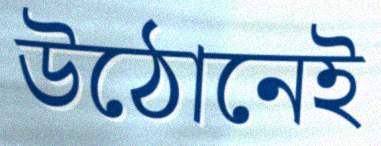
উঠোনেই